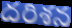
దరిశన